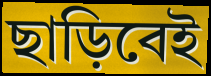
ছাড়িবেই